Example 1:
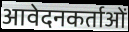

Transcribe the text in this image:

आवेदनकर्ताओं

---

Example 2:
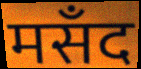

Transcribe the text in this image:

मसँद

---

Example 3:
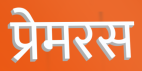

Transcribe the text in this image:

प्रेमरस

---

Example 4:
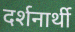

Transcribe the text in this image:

दर्शनार्थी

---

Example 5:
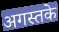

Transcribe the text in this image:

अगस्तके